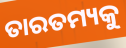
ତାରତମ୍ୟକୁ